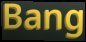
Bang